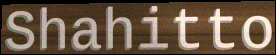
Shahitto